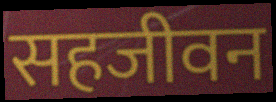
सहजीवन